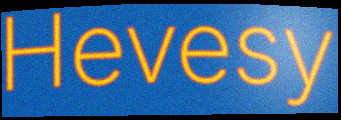
Hevesy